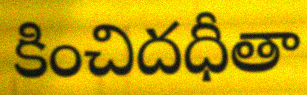
కించిదధీతా